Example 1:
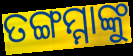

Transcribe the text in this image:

ତଙ୍ଗମ୍ମାଙ୍କୁ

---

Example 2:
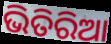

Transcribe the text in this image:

ଭିତିରିଆ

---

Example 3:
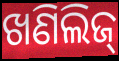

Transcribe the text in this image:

ଖଣିଲିଜ୍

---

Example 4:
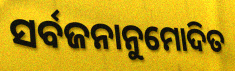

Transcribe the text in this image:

ସର୍ବଜନାନୁମୋଦିତ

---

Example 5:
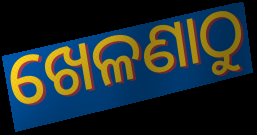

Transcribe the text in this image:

ଖେଳଣାଠୁ